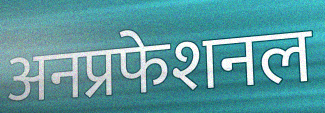
अनप्रफेशनल